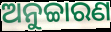
ଅନୁଚ୍ଚାରଣ